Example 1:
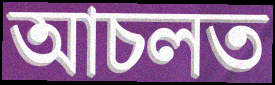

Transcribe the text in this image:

আচলত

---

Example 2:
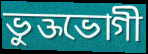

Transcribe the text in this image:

ভুক্তভোগী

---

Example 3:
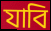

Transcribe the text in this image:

যাবি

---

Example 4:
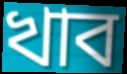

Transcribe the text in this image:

খাব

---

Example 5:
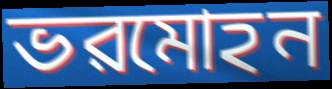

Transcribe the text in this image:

ভৱমোহন